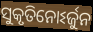
ସୁକୃତିନୋଽର୍ଜୁନ